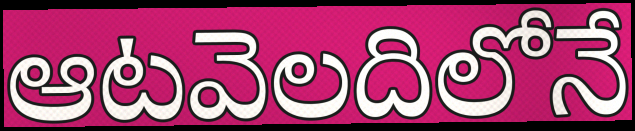
ఆటవెలదిలోనే